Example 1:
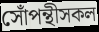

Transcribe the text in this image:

সোঁপন্থীসকল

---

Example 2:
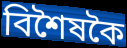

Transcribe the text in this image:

বিশৈষকৈ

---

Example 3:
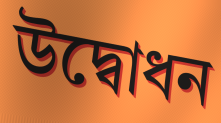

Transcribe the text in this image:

উদ্বোধন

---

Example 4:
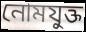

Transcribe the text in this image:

নোমযুক্ত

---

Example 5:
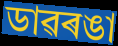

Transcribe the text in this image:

ডাৱৰঙা